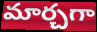
మార్చగా